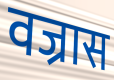
वज्रास